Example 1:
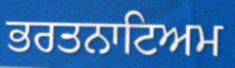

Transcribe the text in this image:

ਭਰਤਨਾਟਿਅਮ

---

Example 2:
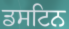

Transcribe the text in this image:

ਡਸਟਿਨ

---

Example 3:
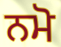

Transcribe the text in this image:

ਨਮੋ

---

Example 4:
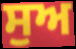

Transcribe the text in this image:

ਸੁਅ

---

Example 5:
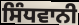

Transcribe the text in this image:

ਸਿੰਧਵਾਨੀ